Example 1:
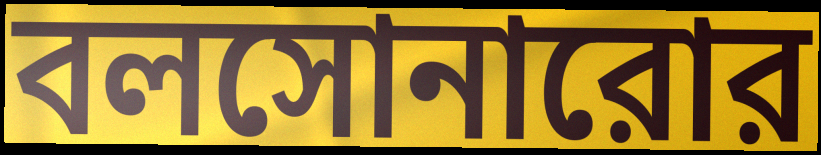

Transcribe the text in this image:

বলসোনারোর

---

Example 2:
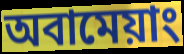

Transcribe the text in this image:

অবামেয়াং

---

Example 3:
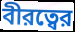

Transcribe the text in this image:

বীরত্বের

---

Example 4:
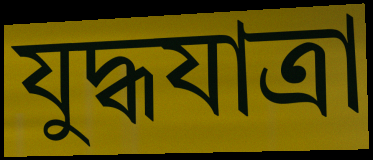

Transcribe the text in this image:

যুদ্ধযাত্রা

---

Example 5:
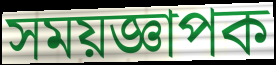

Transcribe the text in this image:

সময়জ্ঞাপক